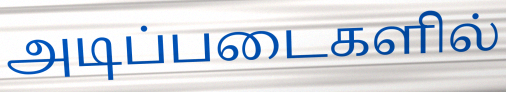
அடிப்படைகளில்